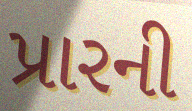
પ્રારની